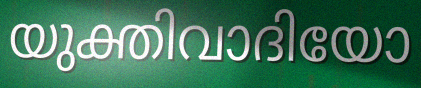
യുക്തിവാദിയോ